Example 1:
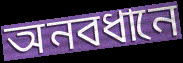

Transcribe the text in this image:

অনবধানে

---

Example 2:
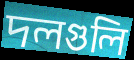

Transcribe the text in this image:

দলগুলি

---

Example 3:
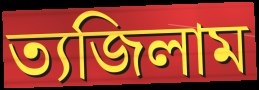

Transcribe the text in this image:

ত্যজিলাম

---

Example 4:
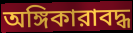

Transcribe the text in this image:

অঙ্গিকারাবদ্ধ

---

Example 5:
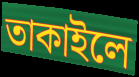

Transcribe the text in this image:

তাকাইলে